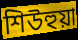
শিউহুয়া